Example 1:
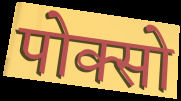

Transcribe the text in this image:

पोक्सो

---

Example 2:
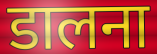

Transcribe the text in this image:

डालना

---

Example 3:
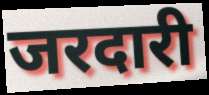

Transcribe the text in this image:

जरदारी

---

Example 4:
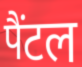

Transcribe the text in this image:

पैंटल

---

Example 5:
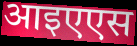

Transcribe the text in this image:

आइएएस